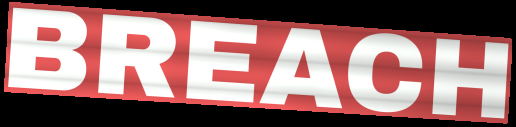
BREACH